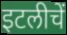
इटलीचें